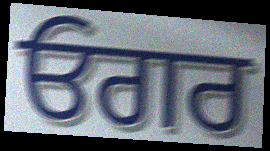
ਓਗਰ